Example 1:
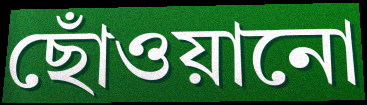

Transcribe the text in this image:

ছোঁওয়ানো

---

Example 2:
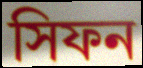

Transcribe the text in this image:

সিফন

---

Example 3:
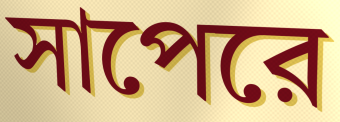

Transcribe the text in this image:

সাপেরে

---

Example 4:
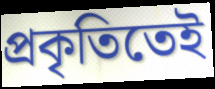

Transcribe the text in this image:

প্রকৃতিতেই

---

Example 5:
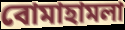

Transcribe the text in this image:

বোমাহামলা